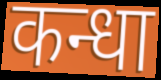
कन्धा